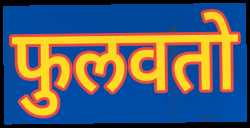
फुलवतो